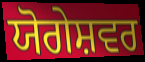
ਯੋਗੇਸ਼ਵਰ